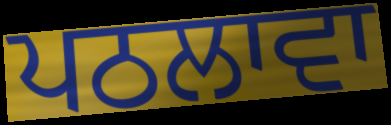
ਪਠਲਾਵਾ